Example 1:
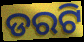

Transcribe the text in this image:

ଡରଟି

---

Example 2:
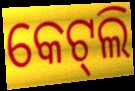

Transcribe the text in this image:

କେଟ୍‌ଲି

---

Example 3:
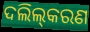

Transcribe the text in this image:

ଦଲିଲ୍‌କରଣ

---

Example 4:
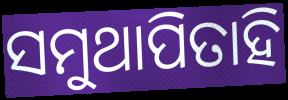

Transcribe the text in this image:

ସମୁଥାପିତାହି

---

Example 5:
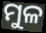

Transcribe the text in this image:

ମୁଳ